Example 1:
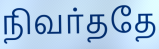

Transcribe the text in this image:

நிவர்ததே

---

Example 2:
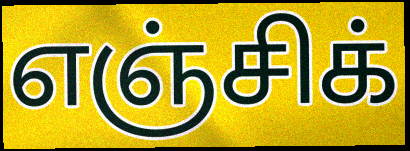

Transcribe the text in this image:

எஞ்சிக்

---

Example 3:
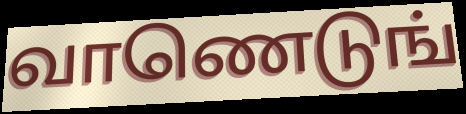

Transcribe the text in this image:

வாணெடுங்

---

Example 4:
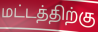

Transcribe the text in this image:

மட்டத்திற்கு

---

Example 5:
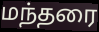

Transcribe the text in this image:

மந்தரை